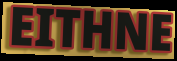
EITHNE